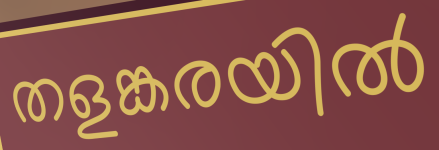
തളങ്കരയിൽ